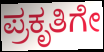
ಪ್ರಕೃತಿಗೇ